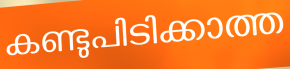
കണ്ടുപിടിക്കാത്ത